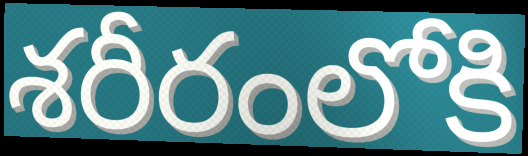
శరీరంలోకి